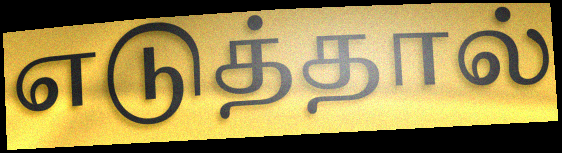
எடுத்தால்